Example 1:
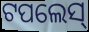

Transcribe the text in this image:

ଟପଲେସ୍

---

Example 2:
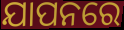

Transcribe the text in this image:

ଯାପନରେ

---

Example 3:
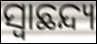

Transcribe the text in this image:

ସ୍ୱାଛନ୍ଦ୍ୟ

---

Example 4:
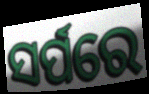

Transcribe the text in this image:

ସର୍ପରେ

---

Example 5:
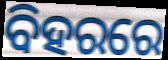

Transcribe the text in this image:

ବିହରରେ